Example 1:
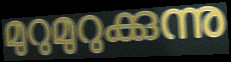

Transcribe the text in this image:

മുറുമുറുക്കുന്നു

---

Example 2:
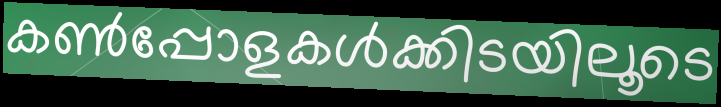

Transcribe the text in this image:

കൺപ്പോളകൾക്കിടയിലൂടെ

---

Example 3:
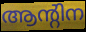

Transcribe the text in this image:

ആന്റിന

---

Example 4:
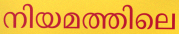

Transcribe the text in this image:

നിയമത്തിലെ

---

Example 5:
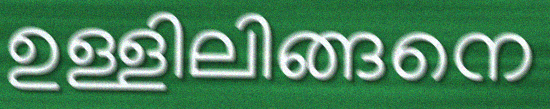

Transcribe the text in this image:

ഉള്ളിലിങ്ങനെ